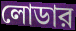
লোডার